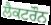
ਲੈਕਟਰੌਨ